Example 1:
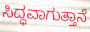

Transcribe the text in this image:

ಸಿದ್ಧವಾಗುತ್ತಾನೆ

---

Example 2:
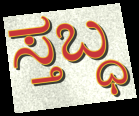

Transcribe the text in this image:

ಸ್ತಬ್ಧ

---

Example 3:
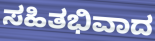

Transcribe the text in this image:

ಸಹಿತಭಿವಾದ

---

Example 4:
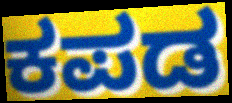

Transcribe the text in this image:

ಕಪಡ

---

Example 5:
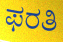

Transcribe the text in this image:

ಫರತಿ